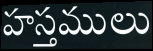
హస్తములు